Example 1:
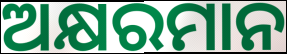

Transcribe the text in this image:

ଅକ୍ଷରମାନ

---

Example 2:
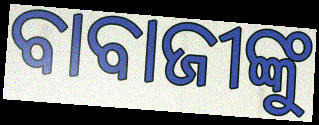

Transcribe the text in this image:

ବାବାଜୀଙ୍କୁ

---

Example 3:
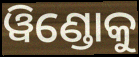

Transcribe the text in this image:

ୱିଣ୍ଡୋକୁ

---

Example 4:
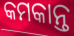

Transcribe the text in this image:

କମକାନ୍ତ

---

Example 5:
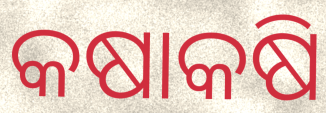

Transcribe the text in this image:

କଷାକଷି